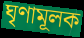
ঘৃণামূলক